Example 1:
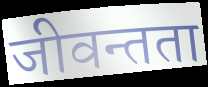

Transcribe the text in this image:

जीवन्तता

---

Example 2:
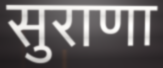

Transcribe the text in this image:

सुराणा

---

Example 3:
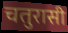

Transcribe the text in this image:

चतुरासी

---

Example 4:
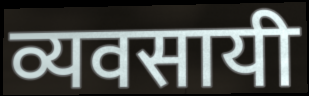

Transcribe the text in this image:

व्यवसायी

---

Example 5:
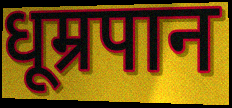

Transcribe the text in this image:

धूम्रपान